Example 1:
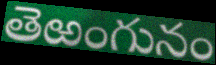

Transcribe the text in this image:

తెఱంగునం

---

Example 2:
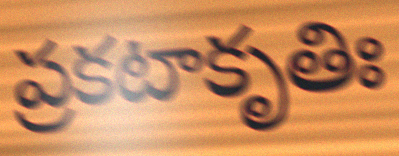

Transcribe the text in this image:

ప్రకటాకృతిః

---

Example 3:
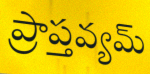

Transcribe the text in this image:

ప్రాప్తవ్యమ్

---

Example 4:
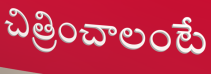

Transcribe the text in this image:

చిత్రించాలంటే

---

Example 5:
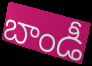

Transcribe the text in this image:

బాండీ